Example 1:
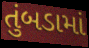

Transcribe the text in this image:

તુંબડામાં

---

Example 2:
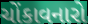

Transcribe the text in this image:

ચોંકાવનારો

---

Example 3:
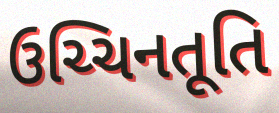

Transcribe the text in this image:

ઉચ્ચિનતૂતિ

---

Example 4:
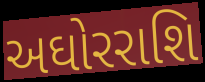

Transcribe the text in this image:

અઘોરરાશિ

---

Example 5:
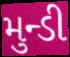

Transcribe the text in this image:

મુન્ડી